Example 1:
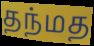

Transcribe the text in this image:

தந்மத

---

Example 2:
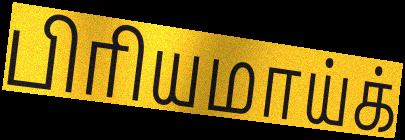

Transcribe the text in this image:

பிரியமாய்க்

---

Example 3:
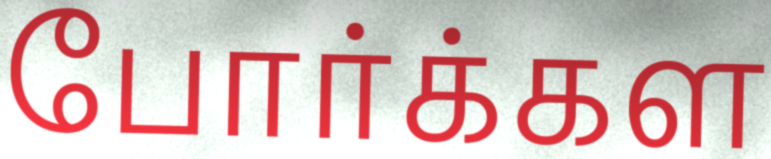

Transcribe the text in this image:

போர்க்கள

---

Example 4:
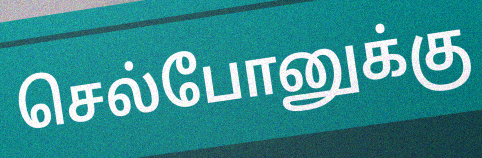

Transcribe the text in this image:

செல்போனுக்கு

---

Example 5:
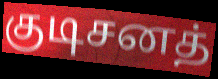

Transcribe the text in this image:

குடிசனத்